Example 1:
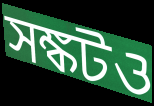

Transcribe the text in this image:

সঙ্কটও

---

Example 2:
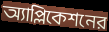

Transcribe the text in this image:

অ্যাপ্লিকেশনের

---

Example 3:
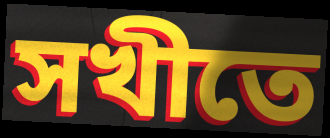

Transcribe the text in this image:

সখীতে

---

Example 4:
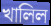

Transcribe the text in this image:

খালিল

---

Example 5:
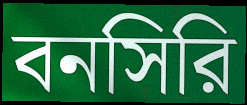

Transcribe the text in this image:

বনসিরি